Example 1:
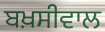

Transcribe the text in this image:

ਬਖ਼ਸੀਵਾਲ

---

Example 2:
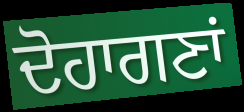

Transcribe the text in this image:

ਦੋਹਾਗਣਾਂ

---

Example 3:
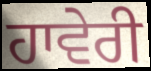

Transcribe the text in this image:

ਹਾਵੇਰੀ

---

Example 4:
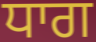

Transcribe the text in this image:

ਧਾਗ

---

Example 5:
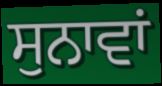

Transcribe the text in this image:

ਸੁਨਾਵਾਂ